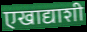
एखाद्याशी